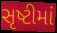
સૃષ્ટીમાં